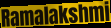
Ramalakshmi